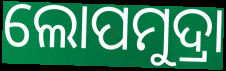
ଲୋପମୁଦ୍ରା